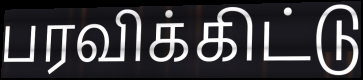
பரவிக்கிட்டு